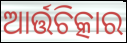
ଆର୍ତ୍ତଚିତ୍କାର